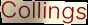
Collings